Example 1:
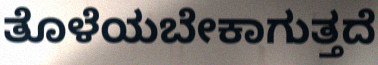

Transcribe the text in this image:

ತೊಳೆಯಬೇಕಾಗುತ್ತದೆ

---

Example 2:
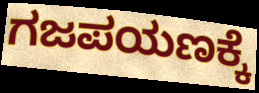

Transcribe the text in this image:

ಗಜಪಯಣಕ್ಕೆ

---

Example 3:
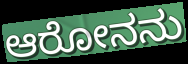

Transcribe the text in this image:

ಆರೋನನು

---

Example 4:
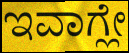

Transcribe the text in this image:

ಇವಾಗ್ಲೇ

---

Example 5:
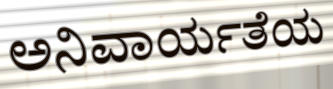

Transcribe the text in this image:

ಅನಿವಾರ್ಯತೆಯ